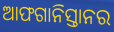
ଆଫଗାନିସ୍ତାନର